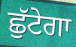
ਛੁੱਟੇਗਾ